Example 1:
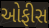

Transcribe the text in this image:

ઓફીસ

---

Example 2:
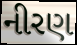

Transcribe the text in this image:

નીરણ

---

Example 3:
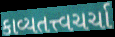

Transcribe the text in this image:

કાવ્યતત્ત્વચર્ચા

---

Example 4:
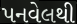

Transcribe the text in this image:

પનવેલથી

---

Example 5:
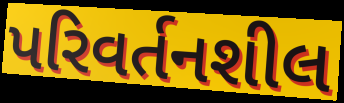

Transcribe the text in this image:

પરિવર્તનશીલ